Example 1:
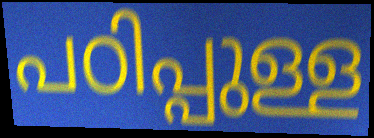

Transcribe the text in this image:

പഠിപ്പുള്ള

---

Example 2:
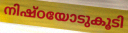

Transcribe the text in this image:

നിഷ്ഠയോടുകൂടി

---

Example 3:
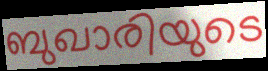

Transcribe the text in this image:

ബുഖാരിയുടെ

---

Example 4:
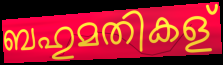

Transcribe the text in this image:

ബഹുമതികള്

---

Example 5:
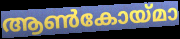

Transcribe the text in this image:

ആൺകോയ്മാ